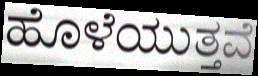
ಹೊಳೆಯುತ್ತವೆ